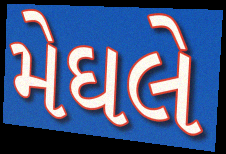
મેઘલે